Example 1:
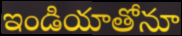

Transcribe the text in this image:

ఇండియాతోనూ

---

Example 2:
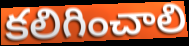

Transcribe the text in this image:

కలిగించాలి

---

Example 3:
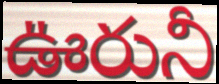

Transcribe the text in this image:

ఊరునీ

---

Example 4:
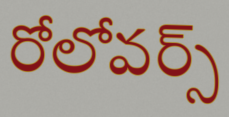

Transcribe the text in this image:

రోలోవర్స్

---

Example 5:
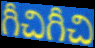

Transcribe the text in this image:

గీచిగీచి